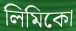
লিমিকো